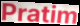
Pratim